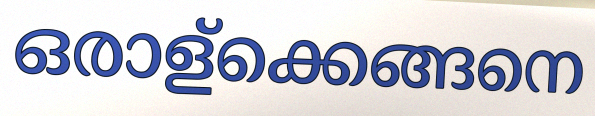
ഒരാള്ക്കെങ്ങനെ